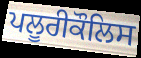
ਪਲੂਰੀਕੌਲਿਸ